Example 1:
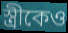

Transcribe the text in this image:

স্ত্রীকেও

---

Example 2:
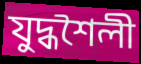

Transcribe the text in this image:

যুদ্ধশৈলী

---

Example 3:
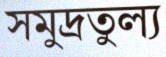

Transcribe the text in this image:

সমুদ্রতুল্য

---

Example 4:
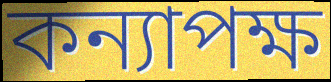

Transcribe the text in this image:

কন্যাপক্ষ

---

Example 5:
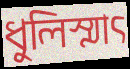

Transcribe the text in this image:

ধুলিস্মাৎ